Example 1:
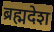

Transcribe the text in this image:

ब्रह्मदेश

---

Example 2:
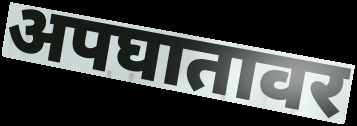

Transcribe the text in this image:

अपघातावर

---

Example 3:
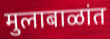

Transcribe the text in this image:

मुलाबाळांत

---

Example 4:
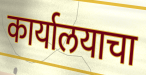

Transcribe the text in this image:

कार्यालयाचा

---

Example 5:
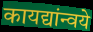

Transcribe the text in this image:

कायद्यांन्वये